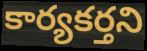
కార్యకర్తని